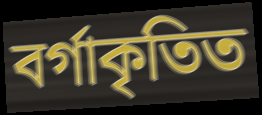
বৰ্গাকৃতিত